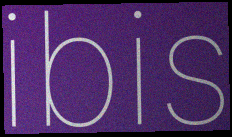
ibis